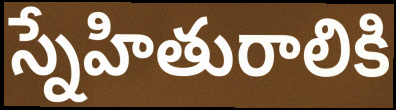
స్నేహితురాలికి